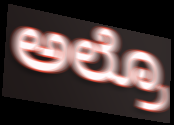
ಅಲ್ರೊ